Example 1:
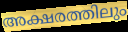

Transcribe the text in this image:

അക്ഷരത്തിലും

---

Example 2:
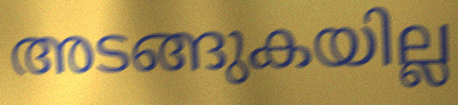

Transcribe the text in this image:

അടങ്ങുകയില്ല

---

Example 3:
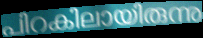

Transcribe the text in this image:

പിറകിലായിരുന്നു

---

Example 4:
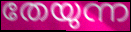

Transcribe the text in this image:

തേയുന്ന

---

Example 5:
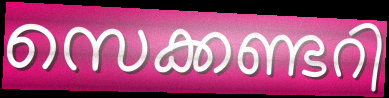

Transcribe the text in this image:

സെക്കണ്ടറി